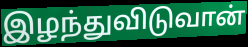
இழந்துவிடுவான்